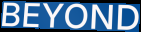
BEYOND